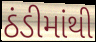
ઠંડીમાંથી